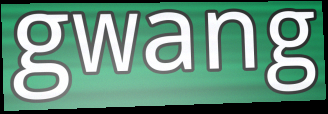
gwang